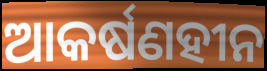
ଆକର୍ଷଣହୀନ